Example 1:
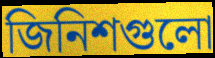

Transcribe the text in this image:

জিনিশগুলো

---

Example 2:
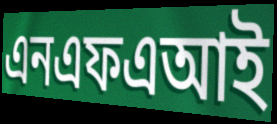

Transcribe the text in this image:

এনএফএআই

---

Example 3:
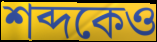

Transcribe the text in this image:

শব্দকেও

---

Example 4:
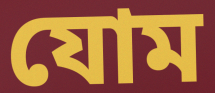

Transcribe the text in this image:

যোম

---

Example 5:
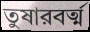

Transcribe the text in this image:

তুষারবর্ত্ম